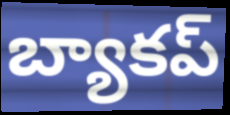
బ్యాకప్